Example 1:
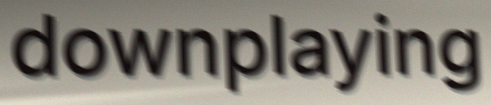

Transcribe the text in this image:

downplaying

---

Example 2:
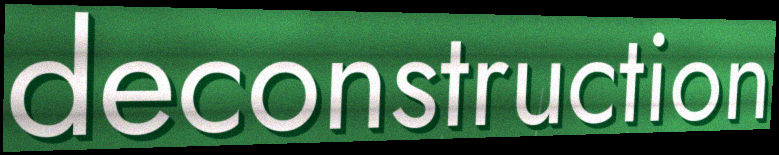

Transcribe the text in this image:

deconstruction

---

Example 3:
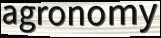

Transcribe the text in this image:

agronomy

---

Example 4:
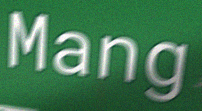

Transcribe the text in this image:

Mang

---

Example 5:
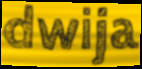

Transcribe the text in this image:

dwija